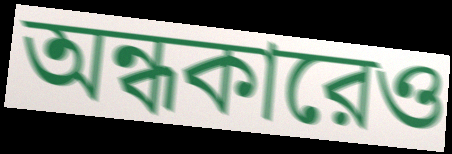
অন্ধকারেও